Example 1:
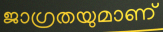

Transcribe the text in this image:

ജാഗ്രതയുമാണ്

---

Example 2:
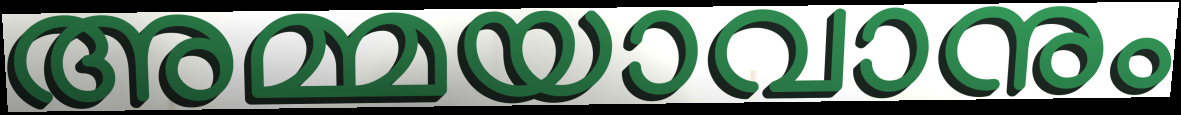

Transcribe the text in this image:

അമ്മയാവാനും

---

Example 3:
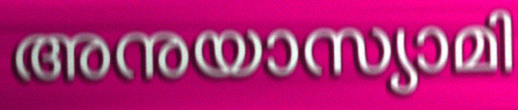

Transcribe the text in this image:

അനുയാസ്യാമി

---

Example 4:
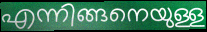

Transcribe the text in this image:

എന്നിങ്ങനെയുള്ള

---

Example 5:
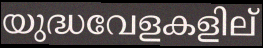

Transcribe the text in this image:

യുദ്ധവേളകളില്